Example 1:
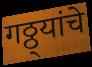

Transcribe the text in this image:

गठ्ठ्यांचे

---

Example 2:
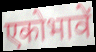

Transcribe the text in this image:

एकोभावें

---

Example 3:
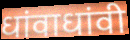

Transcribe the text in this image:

धांवाधांवी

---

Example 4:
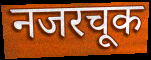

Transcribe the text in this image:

नजरचूक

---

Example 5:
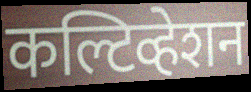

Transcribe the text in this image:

कल्टिव्हेशन